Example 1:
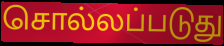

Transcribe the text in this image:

சொல்லப்படுது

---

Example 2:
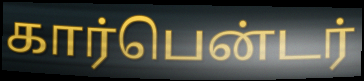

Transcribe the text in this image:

கார்பென்டர்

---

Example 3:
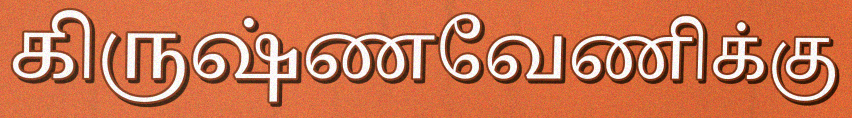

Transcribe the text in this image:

கிருஷ்ணவேணிக்கு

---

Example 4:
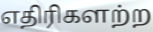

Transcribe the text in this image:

எதிரிகளற்ற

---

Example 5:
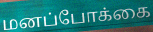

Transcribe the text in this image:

மனப்போக்கை